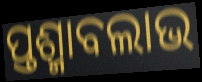
ପ୍ତଶ୍ମାବଲାଭ